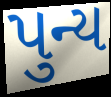
પુન્ય